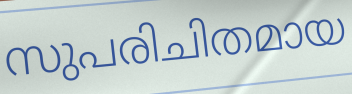
സുപരിചിതമായ